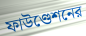
ফাউণ্ডেশনের